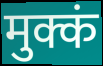
मुक्कं